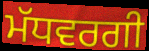
ਮੱਧਵਰਗੀ